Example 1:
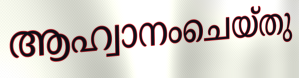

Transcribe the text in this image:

ആഹ്വാനംചെയ്തു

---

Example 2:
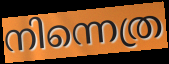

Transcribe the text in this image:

നിന്നെത്ര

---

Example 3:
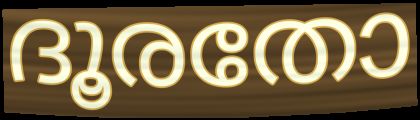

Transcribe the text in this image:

ദൂരതോ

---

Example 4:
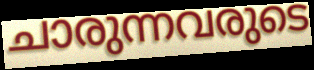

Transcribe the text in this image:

ചാരുന്നവരുടെ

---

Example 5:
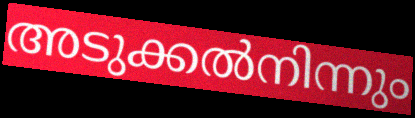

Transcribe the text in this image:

അടുക്കൽനിന്നും